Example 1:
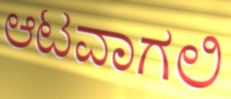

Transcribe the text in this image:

ಆಟವಾಗಲಿ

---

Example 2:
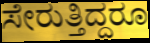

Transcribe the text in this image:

ಸೇರುತ್ತಿದ್ದರೂ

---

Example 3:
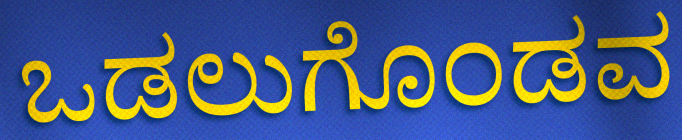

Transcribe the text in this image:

ಒಡಲುಗೊಂಡವ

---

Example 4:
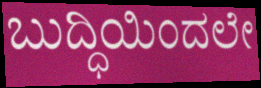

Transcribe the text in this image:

ಬುದ್ಧಿಯಿಂದಲೇ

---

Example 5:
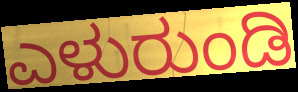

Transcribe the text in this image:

ಎಳುರುಂಡಿ